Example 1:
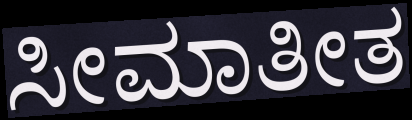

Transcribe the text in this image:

ಸೀಮಾತೀತ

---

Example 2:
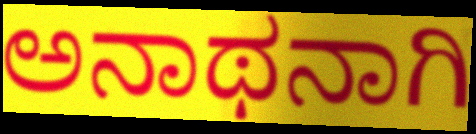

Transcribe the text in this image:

ಅನಾಥನಾಗಿ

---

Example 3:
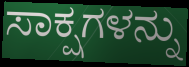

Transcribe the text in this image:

ಸಾಕ್ಷಗಳನ್ನು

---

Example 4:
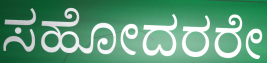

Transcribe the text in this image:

ಸಹೋದರರೇ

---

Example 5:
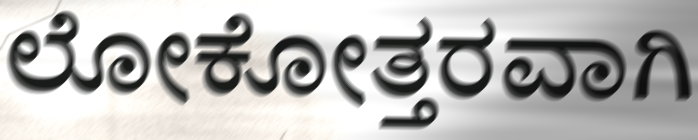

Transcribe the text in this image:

ಲೋಕೋತ್ತರವಾಗಿ